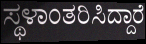
ಸ್ಥಳಾಂತರಿಸಿದ್ದಾರೆ